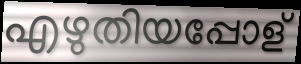
എഴുതിയപ്പോള്